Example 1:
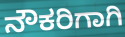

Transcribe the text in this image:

ನೌಕರಿಗಾಗಿ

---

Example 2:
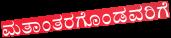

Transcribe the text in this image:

ಮತಾಂತರಗೊಂಡವರಿಗೆ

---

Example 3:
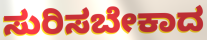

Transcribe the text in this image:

ಸುರಿಸಬೇಕಾದ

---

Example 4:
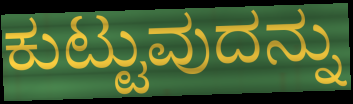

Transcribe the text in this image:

ಕುಟ್ಟುವುದನ್ನು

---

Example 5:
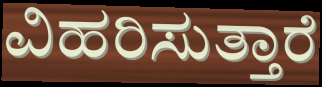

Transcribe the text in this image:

ವಿಹರಿಸುತ್ತಾರೆ